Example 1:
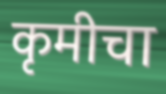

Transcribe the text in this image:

कृमीचा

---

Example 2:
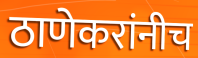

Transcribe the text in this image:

ठाणेकरांनीच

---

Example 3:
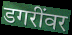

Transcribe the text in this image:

डगरींवर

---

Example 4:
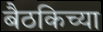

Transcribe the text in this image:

बैठकिच्या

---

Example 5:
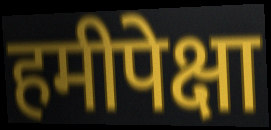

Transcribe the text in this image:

हमीपेक्षा